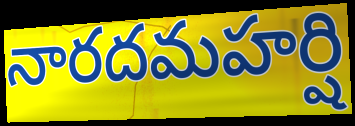
నారదమహర్షి